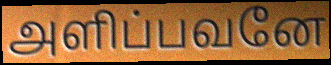
அளிப்பவனே